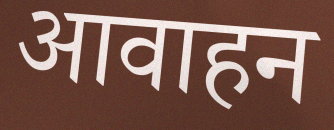
आवाहन